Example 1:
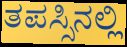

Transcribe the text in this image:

ತಪಸ್ಸಿನಲ್ಲಿ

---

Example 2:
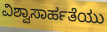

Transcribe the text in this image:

ವಿಶ್ವಾಸಾರ್ಹತೆಯು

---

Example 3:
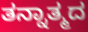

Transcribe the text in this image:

ತನ್ನಾತ್ಮದ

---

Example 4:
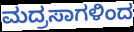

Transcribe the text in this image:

ಮದ್ರಸಾಗಳಿಂದ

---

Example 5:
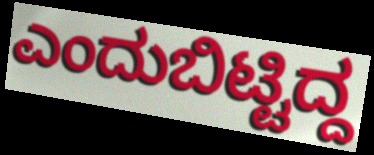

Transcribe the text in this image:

ಎಂದುಬಿಟ್ಟಿದ್ದ